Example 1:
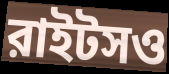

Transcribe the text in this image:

রাইটসও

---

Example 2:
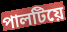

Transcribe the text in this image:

পালটিয়ে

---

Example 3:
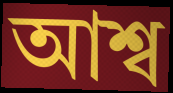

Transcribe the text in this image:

আশ্ব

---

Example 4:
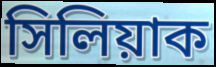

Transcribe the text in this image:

সিলিয়াক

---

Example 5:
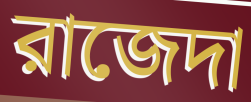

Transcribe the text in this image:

রাজেদা